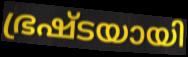
ഭ്രഷ്ടയായി